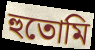
হুতোমি